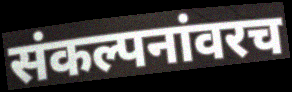
संकल्पनांवरच